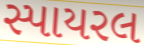
સ્પાયરલ